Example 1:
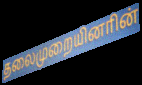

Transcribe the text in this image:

தலைமுறையினரின்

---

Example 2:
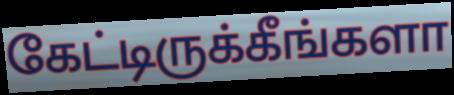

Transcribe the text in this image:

கேட்டிருக்கீங்களா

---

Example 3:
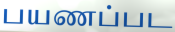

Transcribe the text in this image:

பயணப்பட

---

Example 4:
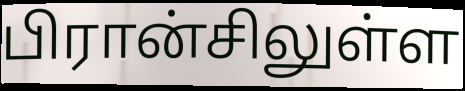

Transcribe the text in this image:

பிரான்சிலுள்ள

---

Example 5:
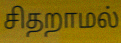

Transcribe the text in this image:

சிதறாமல்